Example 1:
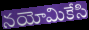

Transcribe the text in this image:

నయోమికేసి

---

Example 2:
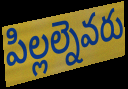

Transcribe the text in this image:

పిల్లల్నెవరు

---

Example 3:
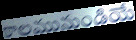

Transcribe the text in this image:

కాలమునుండియే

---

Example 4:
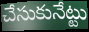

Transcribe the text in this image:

చేసుకునేట్టు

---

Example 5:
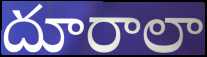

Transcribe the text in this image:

దూరాలా